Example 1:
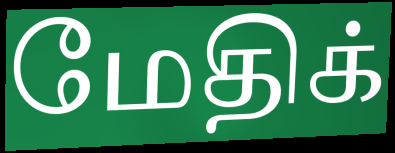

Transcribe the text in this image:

மேதிக்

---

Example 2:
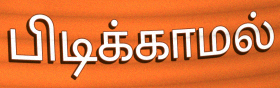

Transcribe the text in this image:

பிடிக்காமல்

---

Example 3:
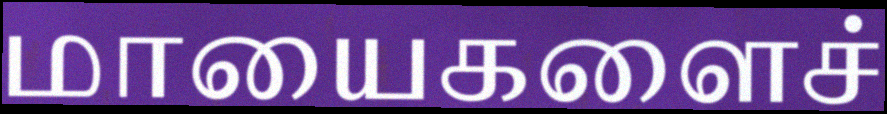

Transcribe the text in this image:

மாயைகளைச்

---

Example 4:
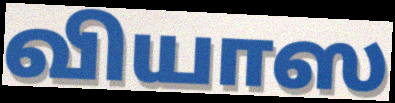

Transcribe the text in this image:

வியாஸ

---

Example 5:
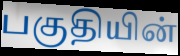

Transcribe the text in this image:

பகுதியின்